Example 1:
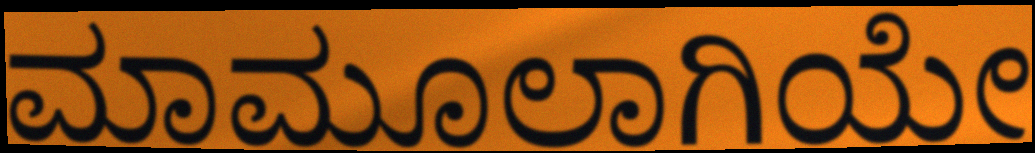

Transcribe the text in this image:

ಮಾಮೂಲಾಗಿಯೇ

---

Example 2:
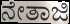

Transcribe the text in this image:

ನೇತಾಜಿ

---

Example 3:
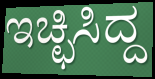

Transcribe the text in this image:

ಇಚ್ಛಿಸಿದ್ದ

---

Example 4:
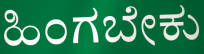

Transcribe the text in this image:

ಹಿಂಗಬೇಕು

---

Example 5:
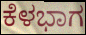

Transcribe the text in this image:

ಕೆಳಭಾಗ